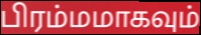
பிரம்மமாகவும்